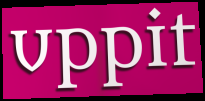
uppit